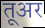
तूअर